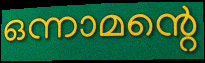
ഒന്നാമന്റെ